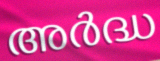
അർദ്ധ